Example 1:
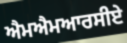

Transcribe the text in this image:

ਐਮਐਮਆਰਸੀਏ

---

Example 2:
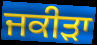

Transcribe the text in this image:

ਜਕੀੜਾ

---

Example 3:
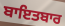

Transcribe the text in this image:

ਬਾਇਤਬਾਰ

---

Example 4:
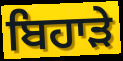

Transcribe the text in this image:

ਬਿਹਾੜੇ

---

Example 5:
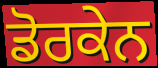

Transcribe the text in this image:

ਡੋਰਕੇਨ